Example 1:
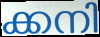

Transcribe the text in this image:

ക്കനി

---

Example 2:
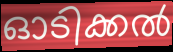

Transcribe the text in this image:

ഓടിക്കൽ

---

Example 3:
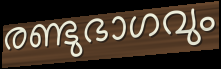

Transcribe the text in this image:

രണ്ടുഭാഗവും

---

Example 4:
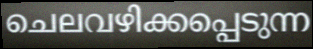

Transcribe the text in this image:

ചെലവഴിക്കപ്പെടുന്ന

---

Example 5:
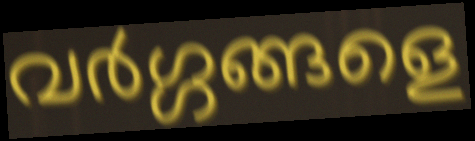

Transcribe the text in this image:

വർഗ്ഗങ്ങളെ